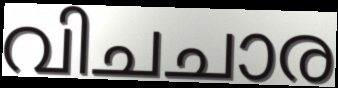
വിചചാര